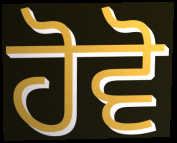
ਹੋਵੋ